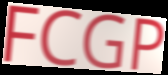
FCGP